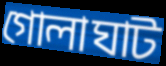
গোলাঘাট